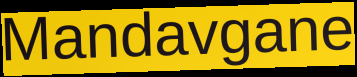
Mandavgane